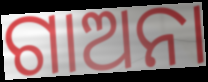
ଗାଅନା